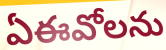
ఏఈవోలను